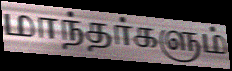
மாந்தர்களும்